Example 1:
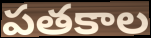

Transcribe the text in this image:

పతకాల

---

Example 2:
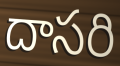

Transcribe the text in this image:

దాసరి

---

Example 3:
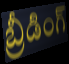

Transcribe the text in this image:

బ్రీడింగ్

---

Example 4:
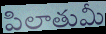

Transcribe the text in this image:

పిలాతుమీ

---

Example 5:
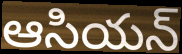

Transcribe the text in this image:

ఆసియన్